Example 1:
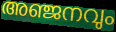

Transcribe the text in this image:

അഞ്ജനവും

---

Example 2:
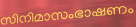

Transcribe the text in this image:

സിനിമാസംഭാഷണം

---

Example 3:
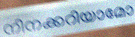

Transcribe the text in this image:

നിനക്കറിയാമോ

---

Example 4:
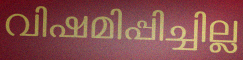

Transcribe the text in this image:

വിഷമിപ്പിച്ചില്ല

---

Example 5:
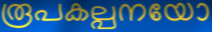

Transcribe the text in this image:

രൂപകല്പനയോ